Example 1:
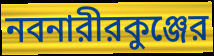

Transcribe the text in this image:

নবনারীরকুঞ্জের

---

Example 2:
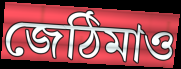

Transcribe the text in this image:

জেঠিমাও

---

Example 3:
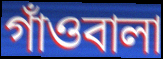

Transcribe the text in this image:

গাঁওবালা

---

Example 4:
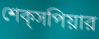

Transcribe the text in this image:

শেক্‌সপিয়ার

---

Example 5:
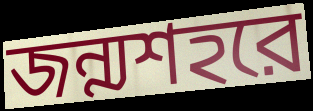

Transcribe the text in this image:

জন্মশহরে